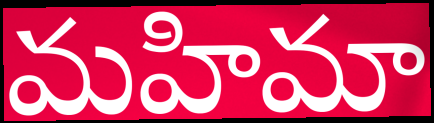
మహిమా